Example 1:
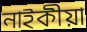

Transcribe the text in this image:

নাইকীয়া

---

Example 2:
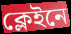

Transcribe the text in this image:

ক্লেইনে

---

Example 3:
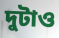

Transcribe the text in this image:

দুটাও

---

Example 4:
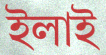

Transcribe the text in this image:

ইলাই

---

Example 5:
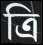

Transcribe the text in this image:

ত্ৰি